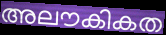
അലൗകികത